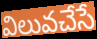
విలువచేసే